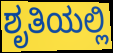
ಶೃತಿಯಲ್ಲಿ